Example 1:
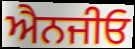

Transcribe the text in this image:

ਐਨਜੀਓ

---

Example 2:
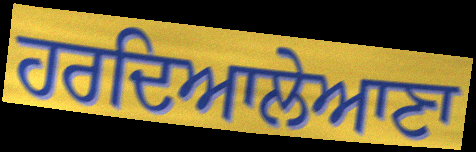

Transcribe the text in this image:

ਹਰਦਿਆਲੇਆਣਾ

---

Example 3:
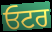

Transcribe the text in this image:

ਓਟਰ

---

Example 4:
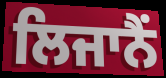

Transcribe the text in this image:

ਲਿਜਾਨੈਂ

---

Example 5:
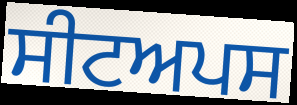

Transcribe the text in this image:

ਸੀਟਅਪਸ